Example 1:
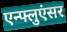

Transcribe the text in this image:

एन्फ्लुएंसर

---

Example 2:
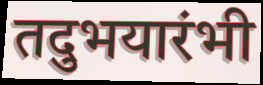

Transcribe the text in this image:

तदुभयारंभी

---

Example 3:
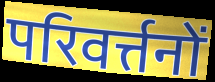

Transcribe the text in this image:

परिवर्त्तनों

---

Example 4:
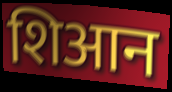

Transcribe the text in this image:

शिआन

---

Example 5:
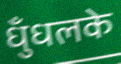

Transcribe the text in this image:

धुँधलके